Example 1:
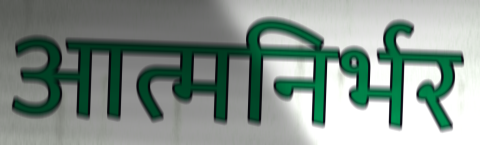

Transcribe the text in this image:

आत्मनिर्भर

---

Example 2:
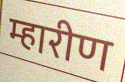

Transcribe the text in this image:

म्हारीण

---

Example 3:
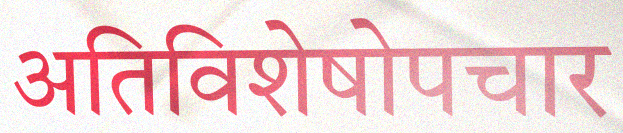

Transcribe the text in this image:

अतिविशेषोपचार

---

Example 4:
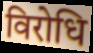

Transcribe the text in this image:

विरोधि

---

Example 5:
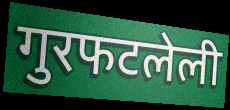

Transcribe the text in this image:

गुरफटलेली